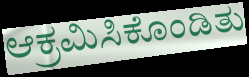
ಆಕ್ರಮಿಸಿಕೊಂಡಿತು